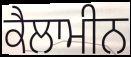
ਕੈਲਾਮੀਨ